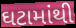
ઘટામાંથી